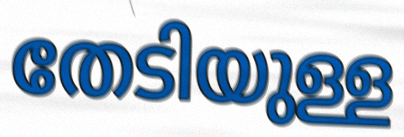
തേടിയുള്ള